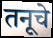
तनूचे